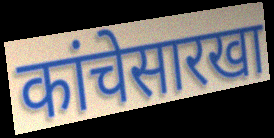
कांचेसारखा